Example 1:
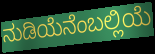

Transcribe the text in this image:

ನುಡಿಯೆನೆಂಬಲ್ಲಿಯೆ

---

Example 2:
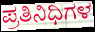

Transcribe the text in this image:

ಪ್ರತಿನಿಧಿಗಳ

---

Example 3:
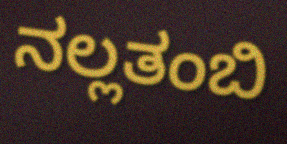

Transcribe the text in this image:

ನಲ್ಲತಂಬಿ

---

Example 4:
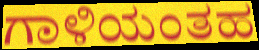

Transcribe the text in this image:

ಗಾಳಿಯಂತಹ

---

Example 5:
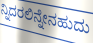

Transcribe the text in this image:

ನ್ನಿದರಲಿನ್ನೇನಹುದು